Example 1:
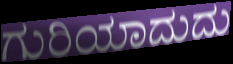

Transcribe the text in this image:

ಗುರಿಯಾದುದು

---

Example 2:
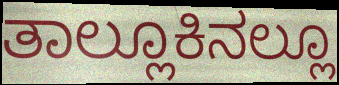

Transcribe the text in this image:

ತಾಲ್ಲೂಕಿನಲ್ಲೂ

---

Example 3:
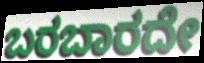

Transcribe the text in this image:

ಬರಬಾರದೇ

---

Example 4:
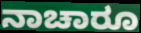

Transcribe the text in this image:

ನಾಚಾರೂ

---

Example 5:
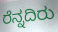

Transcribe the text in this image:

ರೆನ್ನದಿರು